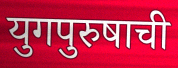
युगपुरुषाची